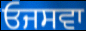
ਓਜਸਵਾ